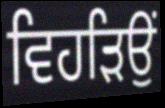
ਵਿਹੜਿਉਂ